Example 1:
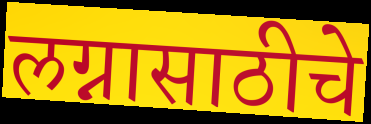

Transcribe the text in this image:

लग्नासाठीचे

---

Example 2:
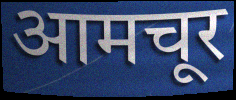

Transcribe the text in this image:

आमचूर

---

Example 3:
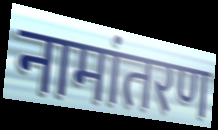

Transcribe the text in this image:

नामांतरण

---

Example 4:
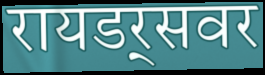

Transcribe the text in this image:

रायडर्सवर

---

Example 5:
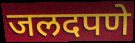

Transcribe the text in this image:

जलदपणे